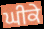
ਘੀਕੇ